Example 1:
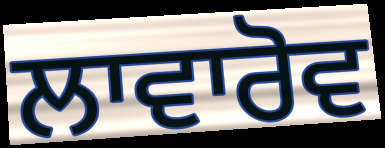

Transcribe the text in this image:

ਲਾਵਾਰੋਵ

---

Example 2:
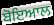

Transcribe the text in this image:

ਬੋਇਆਲ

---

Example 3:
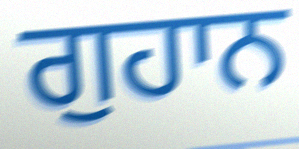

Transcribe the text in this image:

ਗੁਹਾਨ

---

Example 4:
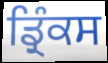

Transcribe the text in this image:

ਡ੍ਰਿੰਕਸ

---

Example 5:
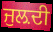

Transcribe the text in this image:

ਜੁਲ਼ਦੀ